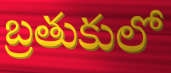
బ్రతుకులో